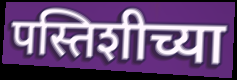
पस्तिशीच्या